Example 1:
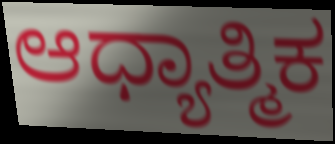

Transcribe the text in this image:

ಆಧ್ಯಾತ್ಮಿಕ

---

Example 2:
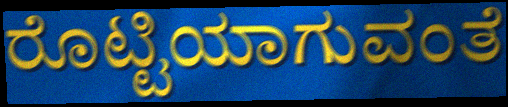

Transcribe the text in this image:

ರೊಟ್ಟಿಯಾಗುವಂತೆ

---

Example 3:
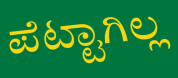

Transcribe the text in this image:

ಪೆಟ್ಟಾಗಿಲ್ಲ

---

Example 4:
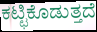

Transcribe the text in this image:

ಕಟ್ಟಿಕೊಡುತ್ತದೆ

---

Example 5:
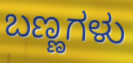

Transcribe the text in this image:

ಬಣ್ಣಗಳು